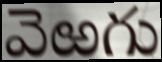
వెఱగు